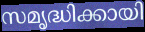
സമൃദ്ധിക്കായി